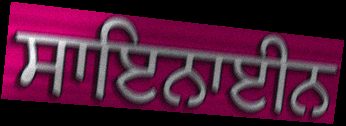
ਸਾਇਨਾਈਨ